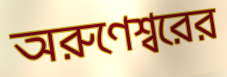
অরুণেশ্বরের